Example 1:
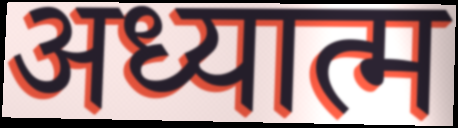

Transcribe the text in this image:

अध्यात्म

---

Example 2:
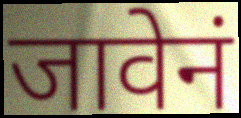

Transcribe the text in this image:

जावेनं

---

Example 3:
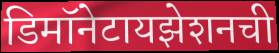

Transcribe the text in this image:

डिमॉनेटायझेशनची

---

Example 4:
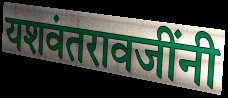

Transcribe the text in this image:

यशवंतरावजींनी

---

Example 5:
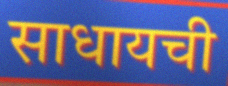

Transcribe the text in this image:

साधायची